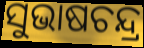
ସୁଭାଷଚନ୍ଦ୍ର